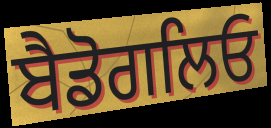
ਬੈਡੋਗਲਿਓ